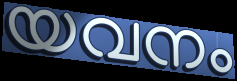
യവനം